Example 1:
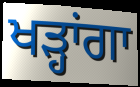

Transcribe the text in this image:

ਖੜ੍ਹਾਂਗਾ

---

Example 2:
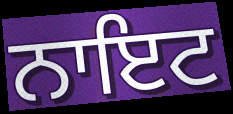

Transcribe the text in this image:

ਨਾਇਟ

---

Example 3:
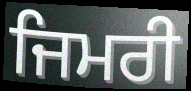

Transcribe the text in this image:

ਜਿਮਰੀ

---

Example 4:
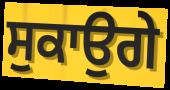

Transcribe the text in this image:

ਸੁਕਾਉਗੇ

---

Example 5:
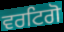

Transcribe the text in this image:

ਵਰਟਿਗੋ